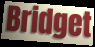
Bridget